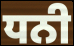
ਧਨੀ